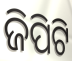
ଜିପିଟି